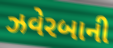
ઝવેરબાની